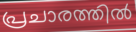
പ്രചാരത്തിൽ